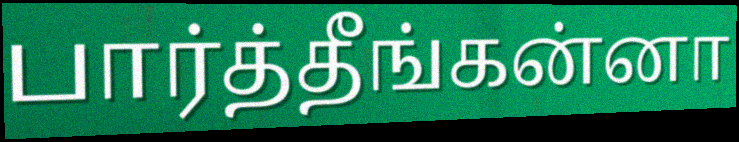
பார்த்தீங்கன்னா